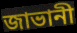
জাভানী